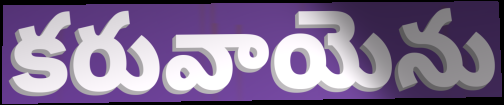
కరువాయెను